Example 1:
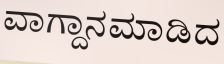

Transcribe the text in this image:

ವಾಗ್ದಾನಮಾಡಿದ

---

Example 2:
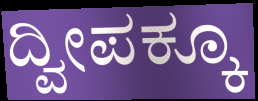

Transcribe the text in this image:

ದ್ವೀಪಕ್ಕೂ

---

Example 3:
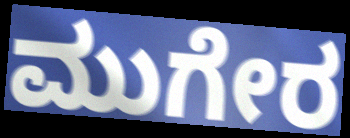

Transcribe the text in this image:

ಮುಗೇರ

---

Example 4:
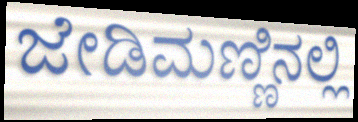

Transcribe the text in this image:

ಜೇಡಿಮಣ್ಣಿನಲ್ಲಿ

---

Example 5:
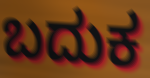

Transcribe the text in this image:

ಬದುಕ